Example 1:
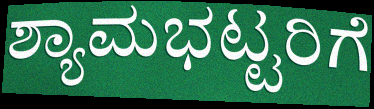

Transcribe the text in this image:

ಶ್ಯಾಮಭಟ್ಟರಿಗೆ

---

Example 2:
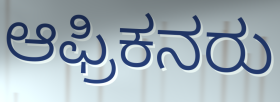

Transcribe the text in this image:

ಆಫ್ರಿಕನರು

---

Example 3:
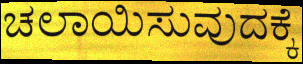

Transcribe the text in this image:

ಚಲಾಯಿಸುವುದಕ್ಕೆ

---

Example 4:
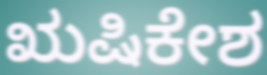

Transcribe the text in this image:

ಋಷಿಕೇಶ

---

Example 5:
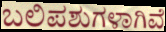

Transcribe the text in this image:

ಬಲಿಪಶುಗಳಾಗಿವೆ